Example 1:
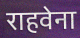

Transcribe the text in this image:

राहवेना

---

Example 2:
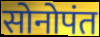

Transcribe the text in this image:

सोनोपंत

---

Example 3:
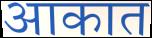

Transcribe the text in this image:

आकात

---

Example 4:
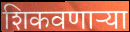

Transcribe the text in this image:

शिकवणाऱ्या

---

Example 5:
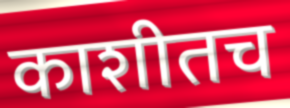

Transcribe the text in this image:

काशीतच